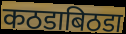
कठडाबिठडा